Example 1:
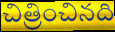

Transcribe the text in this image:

చిత్రించినది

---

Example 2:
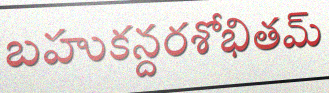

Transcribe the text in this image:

బహుకన్దరశోభితమ్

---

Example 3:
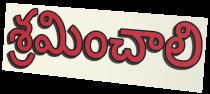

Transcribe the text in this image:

శ్రమించాలి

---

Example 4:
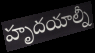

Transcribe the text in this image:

హృదయాల్నీ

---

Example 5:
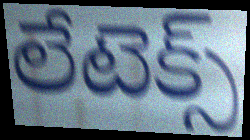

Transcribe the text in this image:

లేటెక్స్